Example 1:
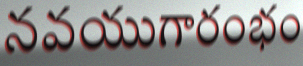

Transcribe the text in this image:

నవయుగారంభం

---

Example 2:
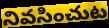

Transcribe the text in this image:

నివసించుట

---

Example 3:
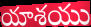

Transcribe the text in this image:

యాశయు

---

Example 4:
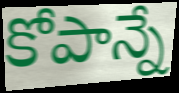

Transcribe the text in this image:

కోపాన్నే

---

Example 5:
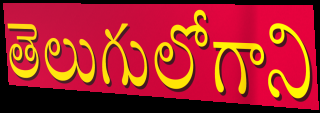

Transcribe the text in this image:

తెలుగులోగాని